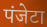
पंजेटा